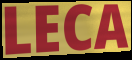
LECA